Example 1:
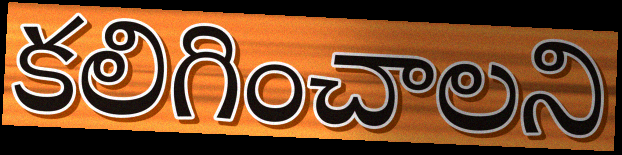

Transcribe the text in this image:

కలిగించాలని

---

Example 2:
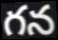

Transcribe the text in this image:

గన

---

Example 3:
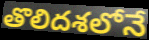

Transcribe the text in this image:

తొలిదశలోనే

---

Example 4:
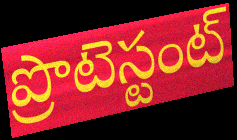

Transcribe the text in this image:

ప్రొటెస్టంట్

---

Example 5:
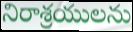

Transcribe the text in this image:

నిరాశ్రయులను